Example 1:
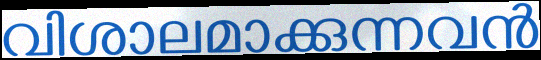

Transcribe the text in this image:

വിശാലമാക്കുന്നവൻ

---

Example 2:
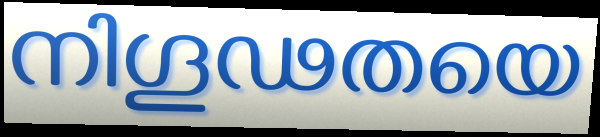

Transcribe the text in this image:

നിഗൂഢതയെ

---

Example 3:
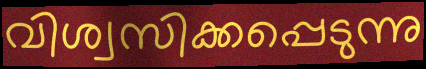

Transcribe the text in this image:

വിശ്വസിക്കപ്പെടുന്നു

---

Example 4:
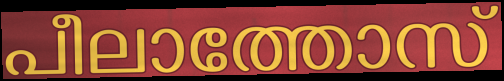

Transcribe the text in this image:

പീലാത്തോസ്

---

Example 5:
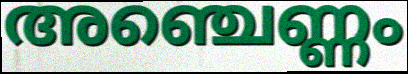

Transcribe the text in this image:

അഞ്ചെണ്ണം